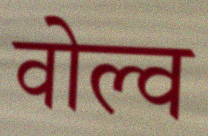
वोल्व